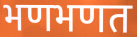
भणभणत